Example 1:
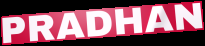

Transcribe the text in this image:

PRADHAN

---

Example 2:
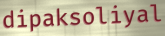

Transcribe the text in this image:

dipaksoliyal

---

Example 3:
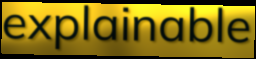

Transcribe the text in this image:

explainable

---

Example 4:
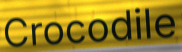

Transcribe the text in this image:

Crocodile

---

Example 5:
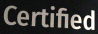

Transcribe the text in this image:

Certified